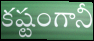
కష్టంగానీ